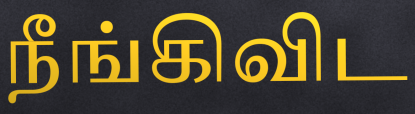
நீங்கிவிட